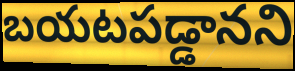
బయటపడ్డానని